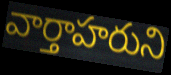
వార్తాహరుని